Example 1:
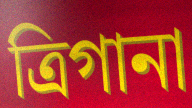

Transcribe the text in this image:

ত্রিগানা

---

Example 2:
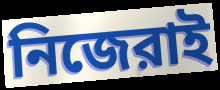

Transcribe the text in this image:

নিজেরাই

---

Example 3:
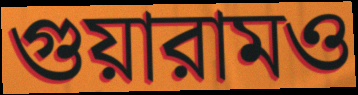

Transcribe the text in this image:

গুয়ারামও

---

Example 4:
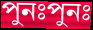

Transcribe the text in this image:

পুনঃপুনঃ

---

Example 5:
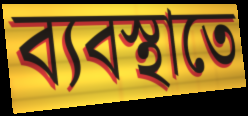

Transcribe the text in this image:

ব্যবস্থাতে